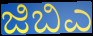
ಜಿಬಿಎ